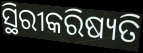
ସ୍ଥିରୀକରିଷ୍ଯତି